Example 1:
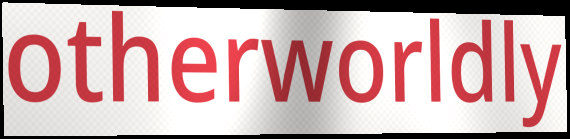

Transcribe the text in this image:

otherworldly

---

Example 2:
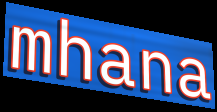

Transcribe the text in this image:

mhana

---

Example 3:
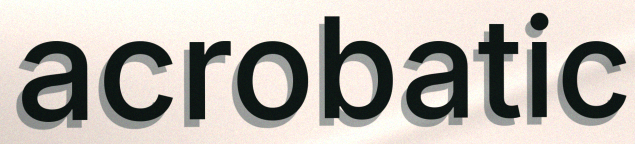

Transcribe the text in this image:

acrobatic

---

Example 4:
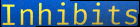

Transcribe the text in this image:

Inhibits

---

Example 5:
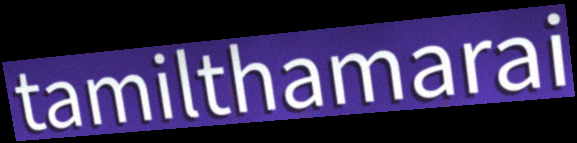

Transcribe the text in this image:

tamilthamarai